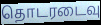
தொடரடைவு